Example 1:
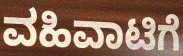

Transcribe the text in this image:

ವಹಿವಾಟಿಗೆ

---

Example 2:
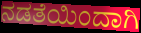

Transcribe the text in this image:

ನಡತೆಯಿಂದಾಗಿ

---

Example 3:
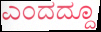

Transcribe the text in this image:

ಎಂದದ್ದೂ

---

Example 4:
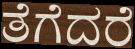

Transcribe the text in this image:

ತೆಗೆದರೆ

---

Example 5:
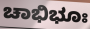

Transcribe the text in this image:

ಚಾಭಿಭೂಃ